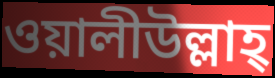
ওয়ালীউল্লাহ্